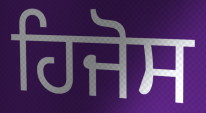
ਹਿਜੋਸ